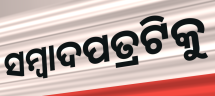
ସମ୍ବାଦପତ୍ରଟିକୁ